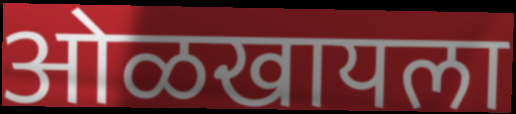
ओळखायला